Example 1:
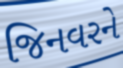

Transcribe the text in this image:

જિનવરને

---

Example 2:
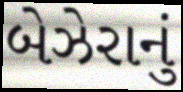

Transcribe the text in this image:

બેઝેરાનું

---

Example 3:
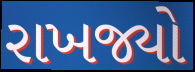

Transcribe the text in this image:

રાખજ્યો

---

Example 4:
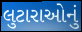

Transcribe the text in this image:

લુટારાઓનું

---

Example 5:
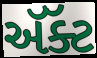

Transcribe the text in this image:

ઍૅક્ટ